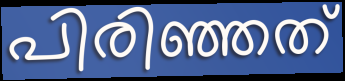
പിരിഞ്ഞത്